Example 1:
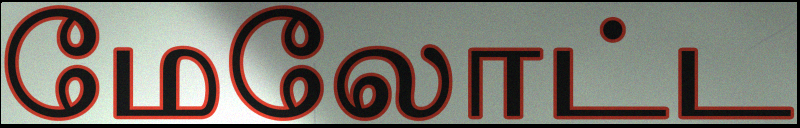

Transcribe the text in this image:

மேலோட்ட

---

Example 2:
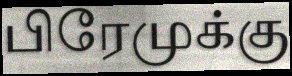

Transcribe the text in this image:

பிரேமுக்கு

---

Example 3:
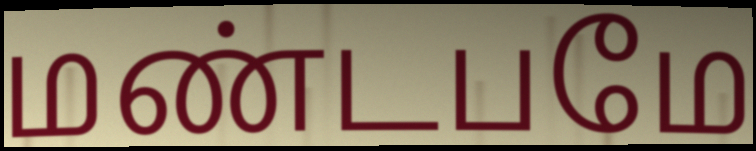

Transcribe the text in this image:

மண்டபமே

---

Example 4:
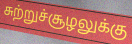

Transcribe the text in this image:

சுற்றுச்சூழலுக்கு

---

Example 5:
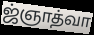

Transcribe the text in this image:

ஜ்ஞாத்வா